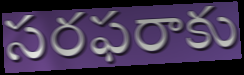
సరఫరాకు